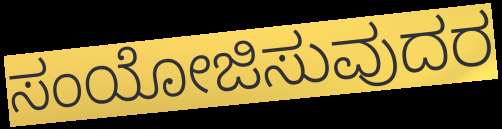
ಸಂಯೋಜಿಸುವುದರ